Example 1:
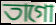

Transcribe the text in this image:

তাগো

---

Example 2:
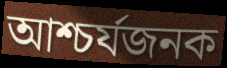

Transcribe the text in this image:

আশ্চর্যজনক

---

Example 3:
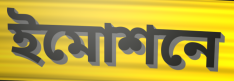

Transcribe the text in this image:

ইমোশনে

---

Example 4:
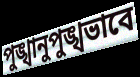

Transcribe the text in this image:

পুঙ্খানুপুঙ্খভাবে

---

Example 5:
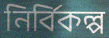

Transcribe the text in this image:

নির্বিকল্প